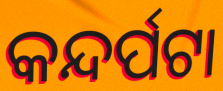
କନ୍ଦର୍ପଟା